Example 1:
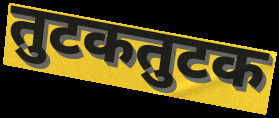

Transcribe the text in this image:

तुटकतुटक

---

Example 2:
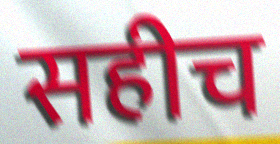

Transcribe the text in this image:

सहीच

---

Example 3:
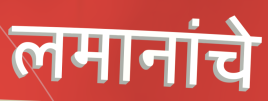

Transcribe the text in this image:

लमानांचे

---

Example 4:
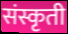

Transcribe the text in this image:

संस्कृती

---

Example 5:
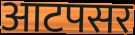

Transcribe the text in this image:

आटपसर